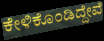
ಕೇಳಿಕೊಂಡಿದ್ದೇವೆ